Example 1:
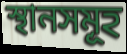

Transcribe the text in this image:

স্থানসমূহ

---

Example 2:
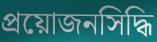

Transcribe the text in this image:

প্রয়োজনসিদ্ধি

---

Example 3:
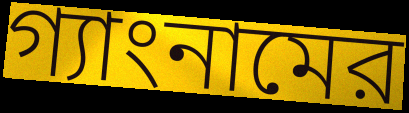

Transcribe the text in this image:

গ্যাংনামের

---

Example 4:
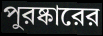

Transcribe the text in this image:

পুরষ্কারের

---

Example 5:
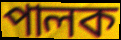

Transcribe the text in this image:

পালক